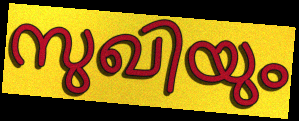
സുഖിയും